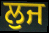
ਲੁਜ